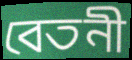
বেতনী